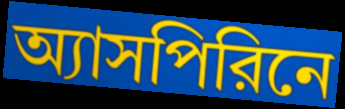
অ্যাসপিরিনে